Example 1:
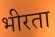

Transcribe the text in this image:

भीरता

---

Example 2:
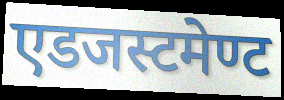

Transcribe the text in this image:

एडजस्टमेण्ट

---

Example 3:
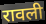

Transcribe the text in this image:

रावली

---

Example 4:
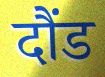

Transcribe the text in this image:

दौंड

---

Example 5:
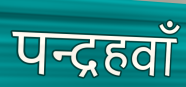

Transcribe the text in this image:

पन्द्रहवाँ